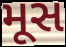
મૂસ